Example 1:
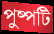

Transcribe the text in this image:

পুষ্পটি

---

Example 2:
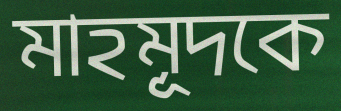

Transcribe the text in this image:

মাহমূদকে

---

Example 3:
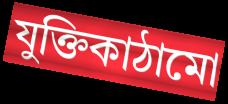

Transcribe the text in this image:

যুক্তিকাঠামো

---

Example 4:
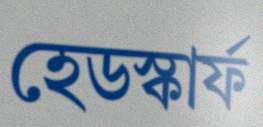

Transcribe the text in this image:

হেডস্কার্ফ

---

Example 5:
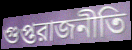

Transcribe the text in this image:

গুপ্তরাজনীতি